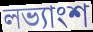
লভ্যাংশ